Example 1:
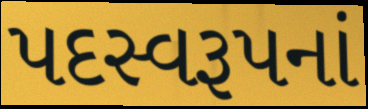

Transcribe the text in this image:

પદસ્વરૂપનાં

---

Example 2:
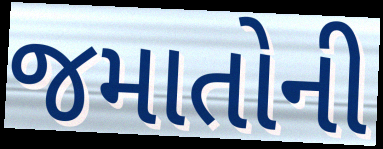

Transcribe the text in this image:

જમાતોની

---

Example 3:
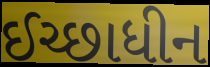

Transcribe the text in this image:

ઈચ્છાધીન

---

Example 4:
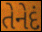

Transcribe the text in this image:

તેનેદં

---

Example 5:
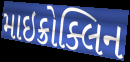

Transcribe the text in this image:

માઇક્રોક્લિન